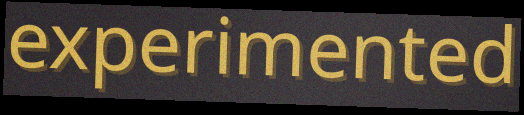
experimented